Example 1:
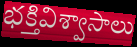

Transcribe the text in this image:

భక్తివిశ్వాసాలు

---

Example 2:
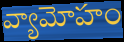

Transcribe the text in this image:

వ్యామోహం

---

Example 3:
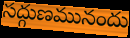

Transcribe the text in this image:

సద్గుణమునందు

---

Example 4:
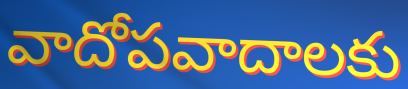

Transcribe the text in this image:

వాదోపవాదాలకు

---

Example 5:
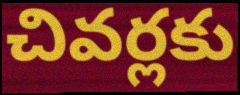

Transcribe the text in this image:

చివర్లకు